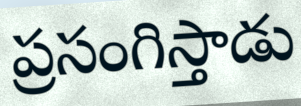
ప్రసంగిస్తాడు